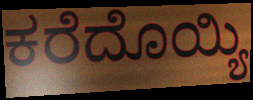
ಕರೆದೊಯ್ಯಿ